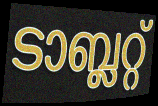
ടാബ്ലറ്റ്